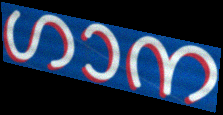
ഗാന